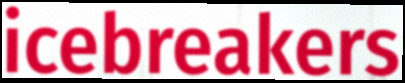
icebreakers